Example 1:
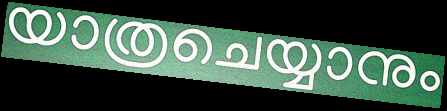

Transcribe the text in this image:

യാത്രചെയ്യാനും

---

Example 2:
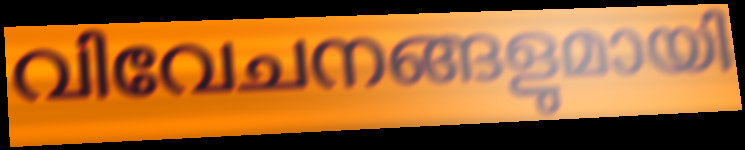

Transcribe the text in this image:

വിവേചനങ്ങളുമായി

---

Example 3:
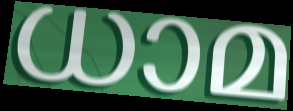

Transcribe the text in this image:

ധാമ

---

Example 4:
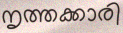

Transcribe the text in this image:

നൃത്തക്കാരി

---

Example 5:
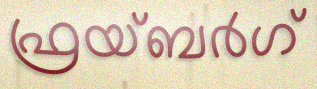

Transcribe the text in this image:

ഫ്രയ്ബർഗ്